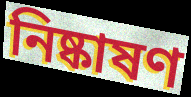
নিষ্কাষণ